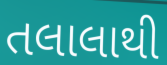
તલાલાથી